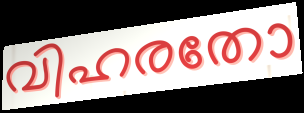
വിഹരതോ